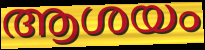
ആശയം